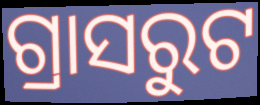
ଗ୍ରାସରୁଟ